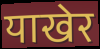
याखेर